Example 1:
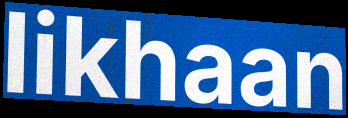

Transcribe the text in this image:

likhaan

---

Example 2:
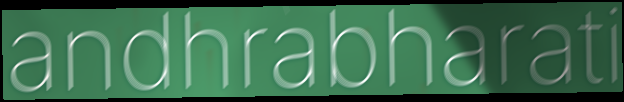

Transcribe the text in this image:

andhrabharati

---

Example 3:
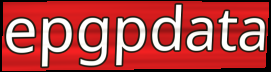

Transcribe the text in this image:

epgpdata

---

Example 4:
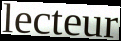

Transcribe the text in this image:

lecteur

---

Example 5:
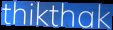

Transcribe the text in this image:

thikthak